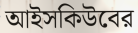
আইসকিউবের